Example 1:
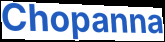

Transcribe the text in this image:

Chopanna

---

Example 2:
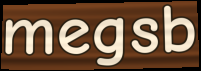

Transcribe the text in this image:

megsb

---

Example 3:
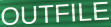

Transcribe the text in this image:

OUTFILE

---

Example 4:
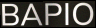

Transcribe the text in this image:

BAPIO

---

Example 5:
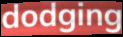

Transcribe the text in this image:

dodging